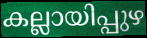
കല്ലായിപ്പുഴ